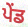
ਪੇਂਡ